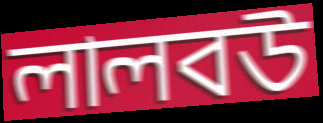
লালবউ